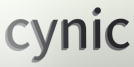
cynic